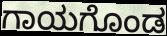
ಗಾಯಗೊಂಡ